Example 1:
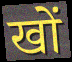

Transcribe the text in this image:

खों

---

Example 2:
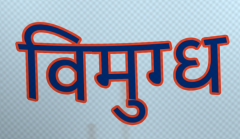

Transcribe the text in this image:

विमुग्ध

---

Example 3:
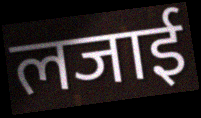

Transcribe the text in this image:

लजाई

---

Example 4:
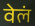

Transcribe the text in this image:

वेलं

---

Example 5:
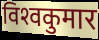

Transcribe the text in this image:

विश्वकुमार